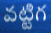
వట్టిగ